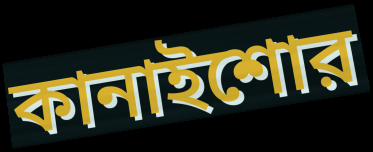
কানাইশোর